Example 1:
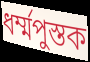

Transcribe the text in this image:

ধর্ম্মপুস্তক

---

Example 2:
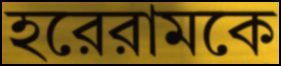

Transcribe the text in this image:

হরেরামকে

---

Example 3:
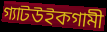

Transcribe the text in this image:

গ্যাটউইকগামী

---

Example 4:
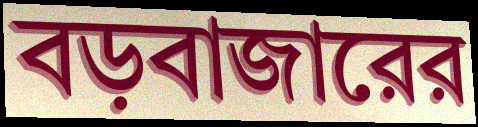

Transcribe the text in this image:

বড়বাজারের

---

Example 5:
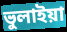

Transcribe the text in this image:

ভুলাইয়া